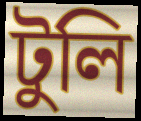
টুলি